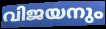
വിജയനും